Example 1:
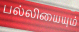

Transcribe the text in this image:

பல்லியையும்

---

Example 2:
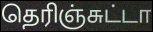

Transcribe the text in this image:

தெரிஞ்சுட்டா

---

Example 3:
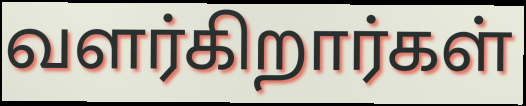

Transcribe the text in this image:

வளர்கிறார்கள்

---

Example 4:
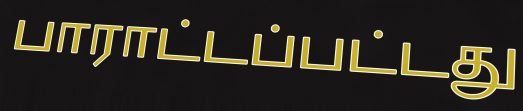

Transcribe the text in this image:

பாராட்டப்பட்டது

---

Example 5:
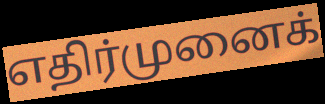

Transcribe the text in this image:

எதிர்முனைக்